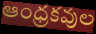
ఆంధ్రకవుల